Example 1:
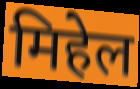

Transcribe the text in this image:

मिहेल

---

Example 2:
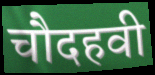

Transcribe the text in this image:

चौदहवी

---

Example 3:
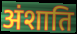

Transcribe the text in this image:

अंशाति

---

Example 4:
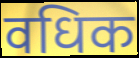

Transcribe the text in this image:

वधिक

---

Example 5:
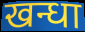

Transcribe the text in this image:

खन्धा